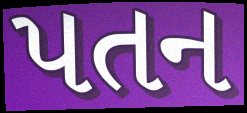
પતન